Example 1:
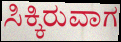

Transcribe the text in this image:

ಸಿಕ್ಕಿರುವಾಗ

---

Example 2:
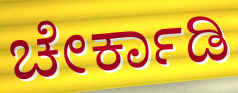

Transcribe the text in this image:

ಚೇರ್ಕಾಡಿ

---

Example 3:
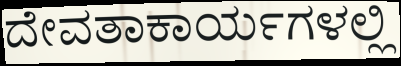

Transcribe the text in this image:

ದೇವತಾಕಾರ್ಯಗಳಲ್ಲಿ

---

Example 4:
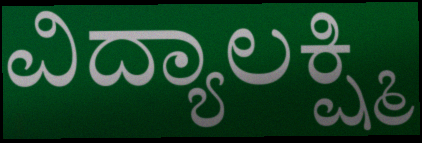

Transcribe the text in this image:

ವಿದ್ಯಾಲಕ್ಷ್ಮಿ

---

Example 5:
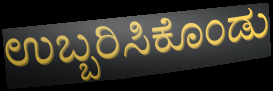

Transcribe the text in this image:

ಉಬ್ಬರಿಸಿಕೊಂಡು